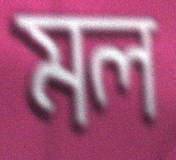
মল